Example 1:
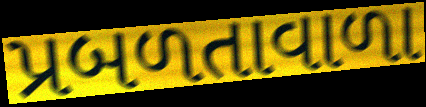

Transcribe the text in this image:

પ્રબળતાવાળા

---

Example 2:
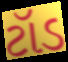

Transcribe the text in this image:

ટૉડ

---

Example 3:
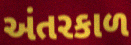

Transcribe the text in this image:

અંતરકાળ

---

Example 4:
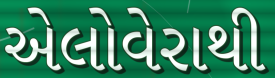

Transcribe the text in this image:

એલોવેરાથી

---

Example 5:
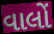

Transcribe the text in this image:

વાલોં